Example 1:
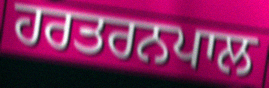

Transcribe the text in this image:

ਹਰਤਰਨਪਾਲ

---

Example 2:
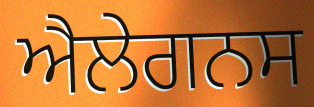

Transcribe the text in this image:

ਐਲੇਗਨਸ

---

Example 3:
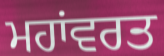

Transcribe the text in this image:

ਮਹਾਂਵਰਤ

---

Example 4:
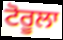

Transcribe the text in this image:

ਟੋਰੂਲਾ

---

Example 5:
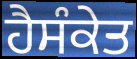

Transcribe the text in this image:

ਹੈਸੰਕੇਤ